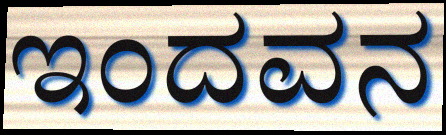
ಇಂದವನ